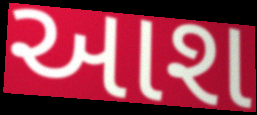
આશ